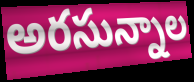
అరసున్నాల